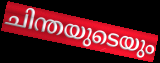
ചിന്തയുടെയും